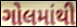
ગોલમાંથી